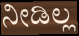
ನೀಡಿಲ್ಲ